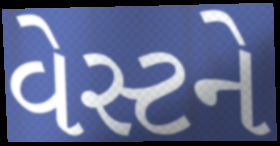
વેસ્ટને